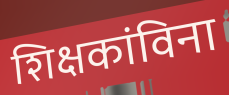
शिक्षकांविना